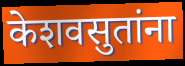
केशवसुतांना